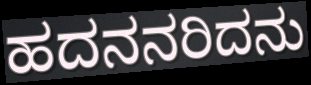
ಹದನನರಿದನು